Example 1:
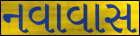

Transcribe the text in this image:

નવાવાસ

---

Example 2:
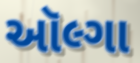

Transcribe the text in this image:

ઑલ્ગા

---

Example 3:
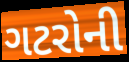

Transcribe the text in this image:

ગટરોની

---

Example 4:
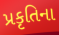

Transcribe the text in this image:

પ્રકૃતિના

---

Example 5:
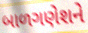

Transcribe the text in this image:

બાળગણેશને